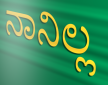
ನಾನಿಲ್ಲ